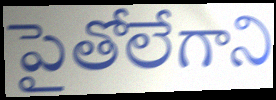
పైతోలేగాని